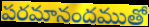
పరమానందముతో